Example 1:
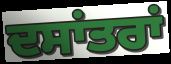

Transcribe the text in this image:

ਦਸਾਂਤਰਾਂ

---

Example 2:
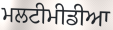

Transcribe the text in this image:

ਮਲਟੀਮੀਡੀਆ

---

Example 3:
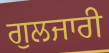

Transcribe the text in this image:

ਗੁਲਜਾਰੀ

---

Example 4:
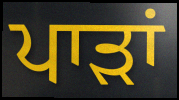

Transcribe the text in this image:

ਪਾੜਾਂ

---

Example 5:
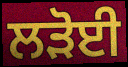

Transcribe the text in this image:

ਲੜੋਈ